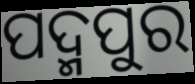
ପଦ୍ମପୁର